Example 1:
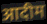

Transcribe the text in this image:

आदीम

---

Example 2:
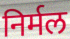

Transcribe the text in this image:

निर्मल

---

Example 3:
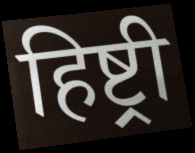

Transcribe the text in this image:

हिष्ट्री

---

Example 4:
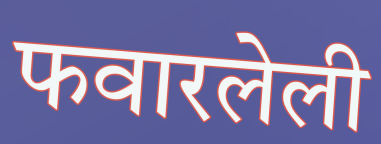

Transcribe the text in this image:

फवारलेली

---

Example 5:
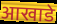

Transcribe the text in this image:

आखाडे